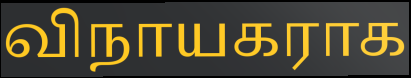
விநாயகராக